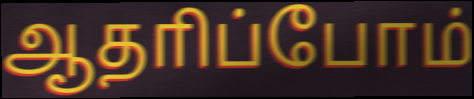
ஆதரிப்போம்